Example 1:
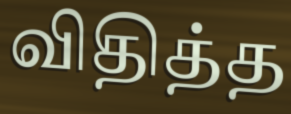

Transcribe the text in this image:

விதித்த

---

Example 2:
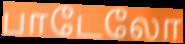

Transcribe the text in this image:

பாடேலோ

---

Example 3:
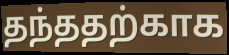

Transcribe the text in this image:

தந்ததற்காக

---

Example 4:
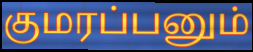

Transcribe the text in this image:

குமரப்பனும்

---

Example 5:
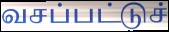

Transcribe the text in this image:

வசப்பட்டுச்